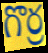
గొర్ర